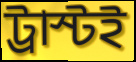
ট্রাস্টই